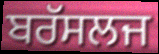
ਬਰੱਸਲਜ